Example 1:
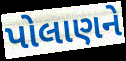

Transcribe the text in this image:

પોલાણને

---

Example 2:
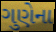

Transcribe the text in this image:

ગુણેના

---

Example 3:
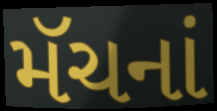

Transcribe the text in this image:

મૅચનાં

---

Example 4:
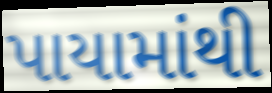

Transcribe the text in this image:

પાયામાંથી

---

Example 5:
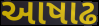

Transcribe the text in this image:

આષાઢ